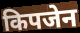
किपजेन